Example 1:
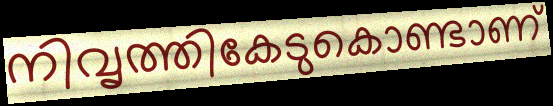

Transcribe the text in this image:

നിവൃത്തികേടുകൊണ്ടാണ്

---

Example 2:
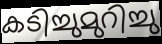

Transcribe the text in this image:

കടിച്ചുമുറിച്ചു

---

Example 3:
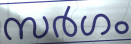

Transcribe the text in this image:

സർഗം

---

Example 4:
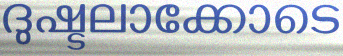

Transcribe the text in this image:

ദുഷ്ടലാക്കോടെ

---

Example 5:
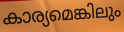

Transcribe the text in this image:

കാര്യമെങ്കിലും